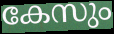
കേസും